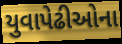
યુવાપેઢીઓના